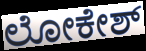
ಲೋಕೇಶ್